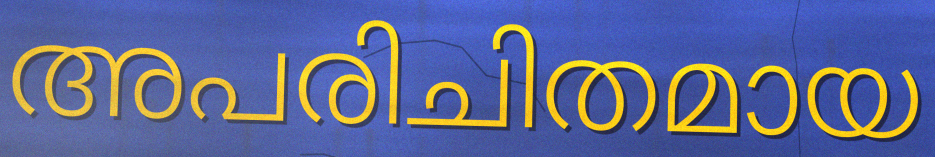
അപരിചിതമായ